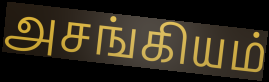
அசங்கியம்